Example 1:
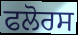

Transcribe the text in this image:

ਫਲੋਰਸ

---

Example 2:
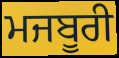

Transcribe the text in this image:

ਮਜਬੂਰੀ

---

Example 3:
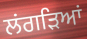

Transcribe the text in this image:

ਲਂਗੜਿਆਂ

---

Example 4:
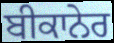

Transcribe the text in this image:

ਬੀਕਾਨੇਰ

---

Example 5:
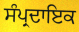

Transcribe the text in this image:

ਸੰਪ੍ਰਦਾਇਕ